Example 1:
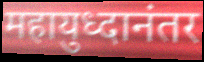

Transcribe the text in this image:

महायुध्दानंतर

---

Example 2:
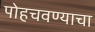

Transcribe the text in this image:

पोहचवण्याचा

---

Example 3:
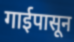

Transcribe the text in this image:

गाईपासून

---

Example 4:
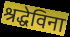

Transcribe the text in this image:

श्रद्धेविना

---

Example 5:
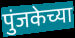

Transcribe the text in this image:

पुंजकेच्या